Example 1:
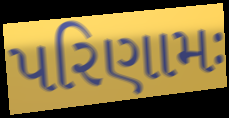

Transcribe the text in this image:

પરિણામઃ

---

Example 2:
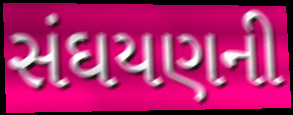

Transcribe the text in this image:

સંઘયણની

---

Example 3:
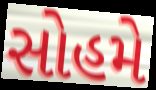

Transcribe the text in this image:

સોહમે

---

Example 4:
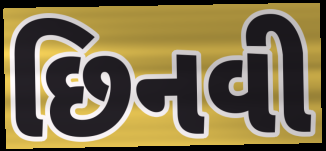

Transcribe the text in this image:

છિનવી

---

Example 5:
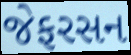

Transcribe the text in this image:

જેફરસન